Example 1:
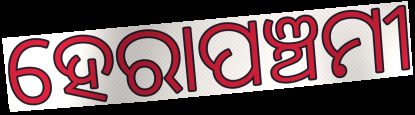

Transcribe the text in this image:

ହେରାପଞ୍ଚମୀ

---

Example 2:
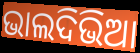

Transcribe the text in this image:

ଭାଲଦିଭିଆ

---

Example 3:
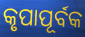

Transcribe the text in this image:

କୃପାପୂର୍ବକ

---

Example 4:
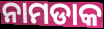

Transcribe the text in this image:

ନାମଡାକ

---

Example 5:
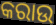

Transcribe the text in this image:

କରାଉ